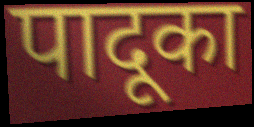
पादूका